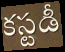
కస్టడీ